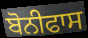
ਬੋਨੀਫਾਸ